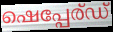
ഷെപ്പേര്ഡ്